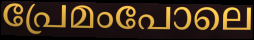
പ്രേമംപോലെ